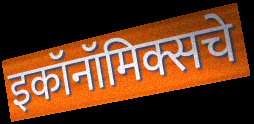
इकॉनॉमिक्सचे